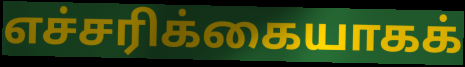
எச்சரிக்கையாகக்